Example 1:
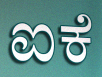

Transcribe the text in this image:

ಐಕೆ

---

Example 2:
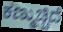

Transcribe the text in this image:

ಕಣ್ಮುಚ್ಚಿದೆ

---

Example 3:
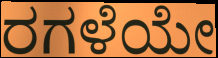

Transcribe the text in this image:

ರಗಳೆಯೇ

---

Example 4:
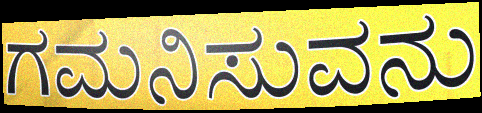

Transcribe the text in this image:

ಗಮನಿಸುವನು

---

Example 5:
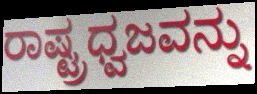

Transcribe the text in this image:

ರಾಷ್ಟ್ರಧ್ವಜವನ್ನು